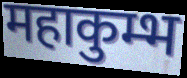
महाकुम्भ